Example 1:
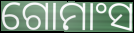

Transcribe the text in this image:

ଗୋମାଂସ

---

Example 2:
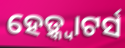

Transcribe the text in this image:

ହେଡ଼୍କ୍ୱାଟର୍ସ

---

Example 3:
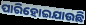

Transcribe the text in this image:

ପାରିହୋଇଯାଉଛି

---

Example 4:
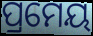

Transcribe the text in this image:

ପ୍ରମେୟ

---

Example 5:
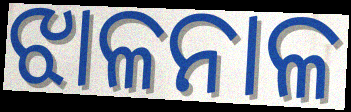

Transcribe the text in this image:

ଝାଳନାଳ